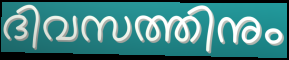
ദിവസത്തിനും